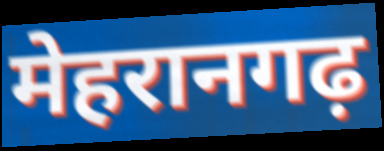
मेहरानगढ़